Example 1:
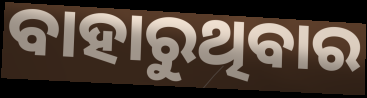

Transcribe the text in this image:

ବାହାରୁଥିବାର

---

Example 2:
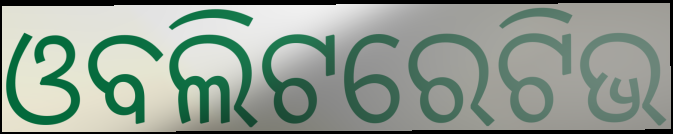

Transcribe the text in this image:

ଓବଲିଟରେଟିଭ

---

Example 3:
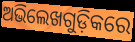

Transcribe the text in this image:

ଅଭିଲେଖଗୁଡ଼ିକରେ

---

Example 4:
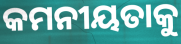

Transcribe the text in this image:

କମନୀୟତାକୁ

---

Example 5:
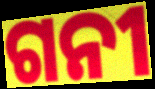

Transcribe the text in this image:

ଗନୀ